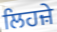
ਲਿਹਜ਼ੇ